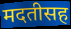
मदतीसह